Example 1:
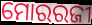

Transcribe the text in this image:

ମୋରରଜୀ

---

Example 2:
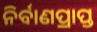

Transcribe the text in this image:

ନିର୍ବାଣପ୍ରାପ୍ତ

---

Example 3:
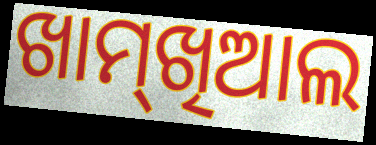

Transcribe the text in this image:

ଖାମ୍‌ଖିଆଲ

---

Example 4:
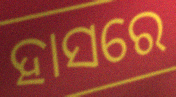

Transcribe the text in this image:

ହାସରେ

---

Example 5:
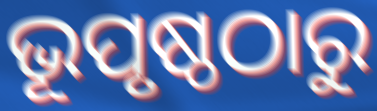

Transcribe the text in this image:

ଭୂପୃଷ୍ଠଠାରୁ